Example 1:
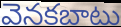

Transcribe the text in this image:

వెనకబాటు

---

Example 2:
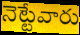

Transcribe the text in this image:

నెట్టేవారు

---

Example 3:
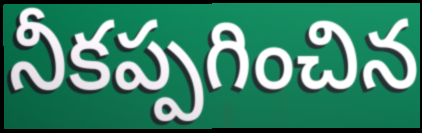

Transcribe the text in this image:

నీకప్పగించిన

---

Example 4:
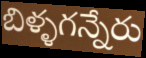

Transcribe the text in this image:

బిళ్ళగన్నేరు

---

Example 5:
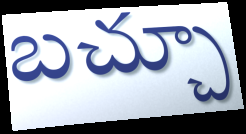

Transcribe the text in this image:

బచ్చూ